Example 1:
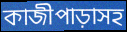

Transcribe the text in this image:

কাজীপাড়াসহ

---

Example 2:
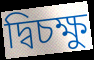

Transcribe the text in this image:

দ্বিচক্ষু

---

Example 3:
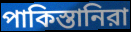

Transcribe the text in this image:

পাকিস্তানিরা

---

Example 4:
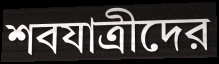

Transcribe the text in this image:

শবযাত্রীদের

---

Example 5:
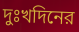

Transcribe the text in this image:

দুঃখদিনের